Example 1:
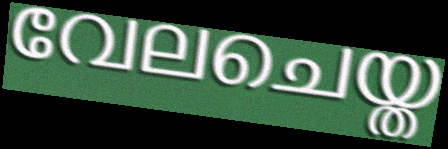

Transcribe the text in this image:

വേലചെയ്ത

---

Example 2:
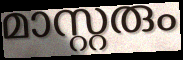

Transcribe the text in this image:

മാസ്റ്റരും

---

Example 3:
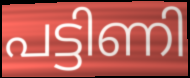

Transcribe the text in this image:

പട്ടിണി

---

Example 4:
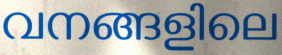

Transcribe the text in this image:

വനങ്ങളിലെ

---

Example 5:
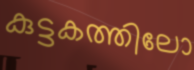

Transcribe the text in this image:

കുട്ടകത്തിലോ